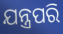
ଯନ୍ତ୍ରପରି